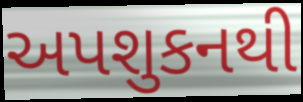
અપશુકનથી